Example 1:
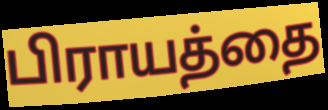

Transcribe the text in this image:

பிராயத்தை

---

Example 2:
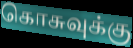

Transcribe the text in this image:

கொசுவுக்கு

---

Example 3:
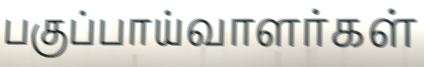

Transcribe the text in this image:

பகுப்பாய்வாளர்கள்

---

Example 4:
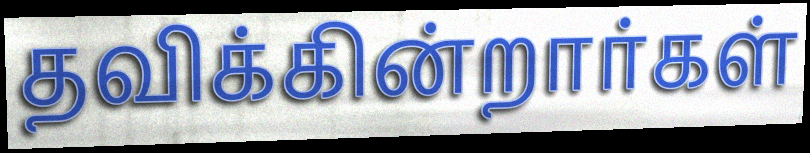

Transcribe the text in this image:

தவிக்கின்றார்கள்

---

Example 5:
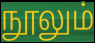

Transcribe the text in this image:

நூலும்